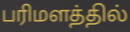
பரிமளத்தில்